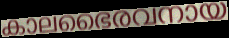
കാലഭൈരവനായ